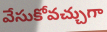
వేసుకోవచ్చుగా